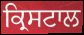
ਕ੍ਰਿਸਟਾਲ